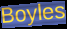
Boyles